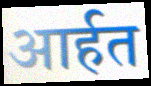
आर्हत